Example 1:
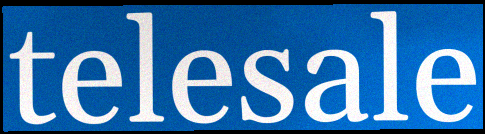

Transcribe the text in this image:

telesale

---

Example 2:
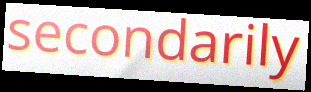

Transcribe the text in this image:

secondarily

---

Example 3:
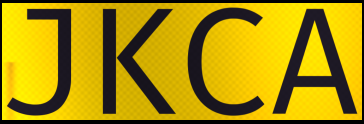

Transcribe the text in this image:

JKCA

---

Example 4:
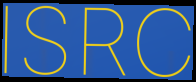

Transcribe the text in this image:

ISRC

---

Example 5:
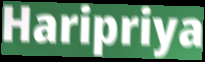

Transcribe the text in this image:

Haripriya